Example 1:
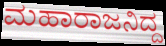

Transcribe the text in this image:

ಮಹಾರಾಜನಿದ್ದ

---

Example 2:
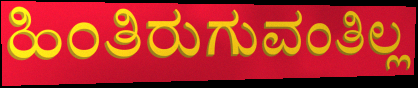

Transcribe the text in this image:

ಹಿಂತಿರುಗುವಂತಿಲ್ಲ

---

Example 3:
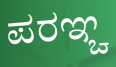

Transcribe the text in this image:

ಪರಞ್ಚ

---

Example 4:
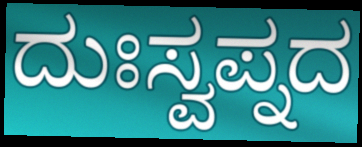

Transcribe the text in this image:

ದುಃಸ್ವಪ್ನದ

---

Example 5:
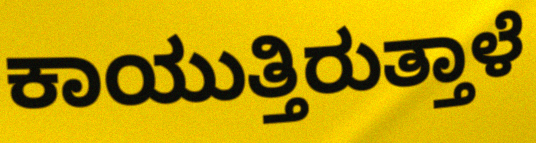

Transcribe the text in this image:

ಕಾಯುತ್ತಿರುತ್ತಾಳೆ